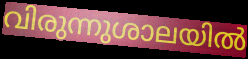
വിരുന്നുശാലയിൽ